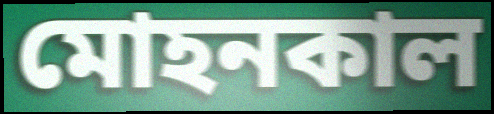
মোহনকাল